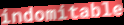
indomitable